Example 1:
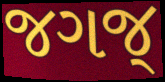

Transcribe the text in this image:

જગજ્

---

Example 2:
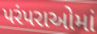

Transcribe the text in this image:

પરંપરાઓમાં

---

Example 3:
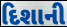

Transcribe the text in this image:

દિશાની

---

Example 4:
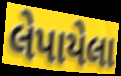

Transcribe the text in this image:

લેપાયેલા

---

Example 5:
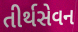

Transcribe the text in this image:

તીર્થસેવન